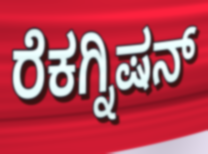
ರೆಕಗ್ನಿಷನ್